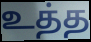
உத்த